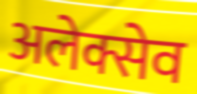
अलेक्सेव